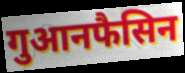
गुआनफैसिन